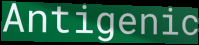
Antigenic